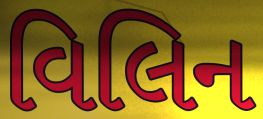
વિલિન